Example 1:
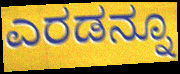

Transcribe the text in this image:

ಎರಡನ್ನೂ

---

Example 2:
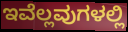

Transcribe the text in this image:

ಇವೆಲ್ಲವುಗಳಲ್ಲಿ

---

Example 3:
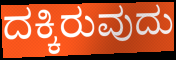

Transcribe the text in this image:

ದಕ್ಕಿರುವುದು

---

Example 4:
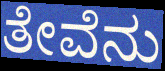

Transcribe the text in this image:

ತೇವೆನು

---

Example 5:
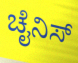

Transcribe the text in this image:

ಚೈನಿಸ್